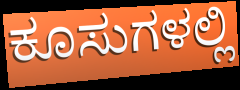
ಕೂಸುಗಳಲ್ಲಿ